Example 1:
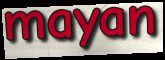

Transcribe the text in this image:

mayan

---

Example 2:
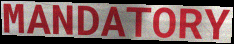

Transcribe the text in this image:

MANDATORY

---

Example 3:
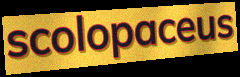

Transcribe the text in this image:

scolopaceus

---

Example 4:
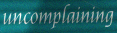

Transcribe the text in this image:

uncomplaining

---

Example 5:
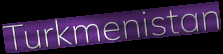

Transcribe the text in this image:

Turkmenistan